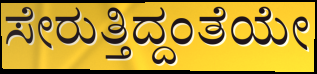
ಸೇರುತ್ತಿದ್ದಂತೆಯೇ